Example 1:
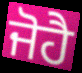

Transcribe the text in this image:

ਜੋਹੈ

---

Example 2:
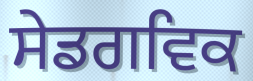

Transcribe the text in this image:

ਸੇਡਗਵਿਕ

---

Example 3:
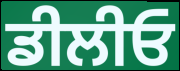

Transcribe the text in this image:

ਡੀਲੀਓ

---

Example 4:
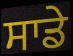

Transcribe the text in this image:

ਸਾਡੇ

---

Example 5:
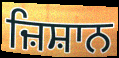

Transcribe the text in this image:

ਜ਼ਿਸ਼ਾਨ